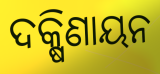
ଦକ୍ଷିଣାୟନ